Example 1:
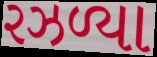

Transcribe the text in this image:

રઝળ્યા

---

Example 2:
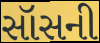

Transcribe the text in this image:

સૉસની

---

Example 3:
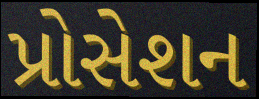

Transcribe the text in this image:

પ્રોસેશન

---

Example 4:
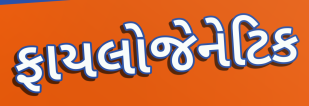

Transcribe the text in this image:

ફાયલોજેનેટિક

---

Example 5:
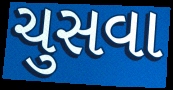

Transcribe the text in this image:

ચુસવા